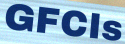
GFCIs